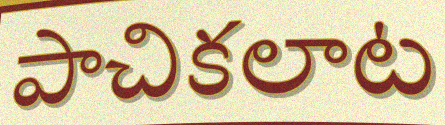
పాచికలాట